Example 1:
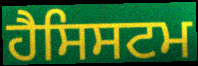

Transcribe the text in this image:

ਹੈਸਿਸਟਮ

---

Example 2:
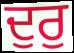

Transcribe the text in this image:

ਦੁਰੁ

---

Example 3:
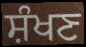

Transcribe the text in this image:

ਸ਼ੰਖਣ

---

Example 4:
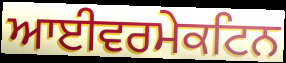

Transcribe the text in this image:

ਆਈਵਰਮੇਕਟਿਨ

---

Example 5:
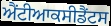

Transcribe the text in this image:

ਐਂਟੀਆਕਸੀਡੈਂਟਸ